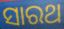
ସାରଥ